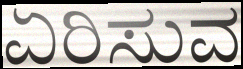
ಏರಿಸುವ